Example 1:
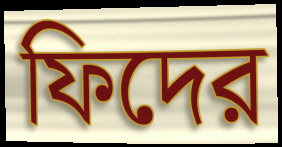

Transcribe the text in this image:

ফিদের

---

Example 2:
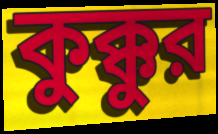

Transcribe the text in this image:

কুক্কুর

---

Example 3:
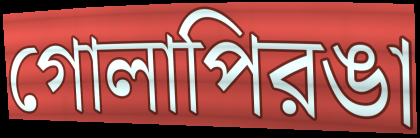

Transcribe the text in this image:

গোলাপিরঙা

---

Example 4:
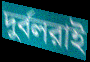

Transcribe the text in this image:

দুর্বলরাই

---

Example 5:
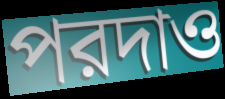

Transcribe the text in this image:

পরদাও